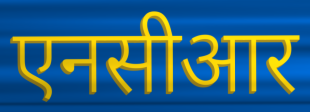
एनसीआर